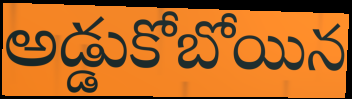
అడ్డుకోబోయిన